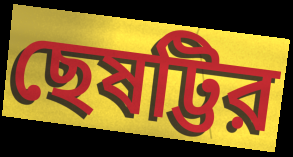
ছেষট্টির